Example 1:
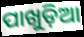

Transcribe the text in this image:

ପାଖୁଡ଼ିଆ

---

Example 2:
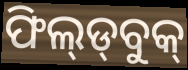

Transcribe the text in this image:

ଫିଲ୍‍ଡ୍‍ବୁକ୍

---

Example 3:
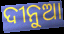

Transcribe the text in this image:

ଦୀନୁଆ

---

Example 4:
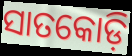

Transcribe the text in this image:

ସାତକୋଡ଼ି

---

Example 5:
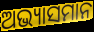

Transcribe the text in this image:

ଅଭ୍ୟାସମାନ